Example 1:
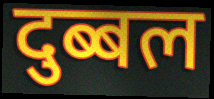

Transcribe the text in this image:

दुब्बल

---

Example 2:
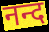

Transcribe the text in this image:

नन्द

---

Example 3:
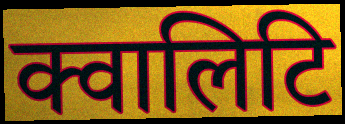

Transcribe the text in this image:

क्वालिटि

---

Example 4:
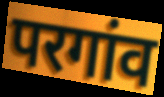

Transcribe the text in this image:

परगांव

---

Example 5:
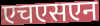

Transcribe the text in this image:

एचएसएन